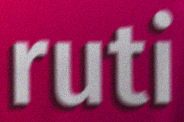
ruti